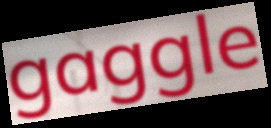
gaggle